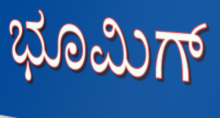
ಭೂಮಿಗ್